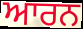
ਆਰਨ